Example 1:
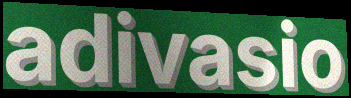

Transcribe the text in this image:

adivasio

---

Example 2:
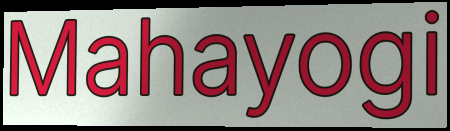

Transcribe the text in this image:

Mahayogi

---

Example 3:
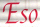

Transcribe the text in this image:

Eso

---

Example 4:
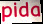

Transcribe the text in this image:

pida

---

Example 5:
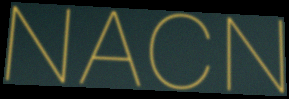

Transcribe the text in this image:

NACN